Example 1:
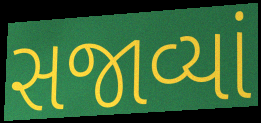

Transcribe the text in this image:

સજાવ્યાં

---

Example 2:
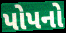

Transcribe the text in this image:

પોપનો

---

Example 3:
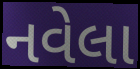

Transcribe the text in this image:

નવેલા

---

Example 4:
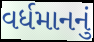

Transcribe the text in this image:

વર્ધમાનનું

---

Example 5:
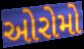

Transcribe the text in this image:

ઓરોમો